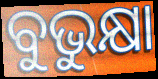
ବୁଭୁକ୍ଷା